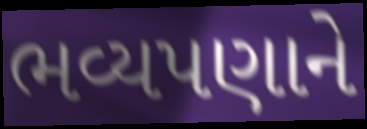
ભવ્યપણાને